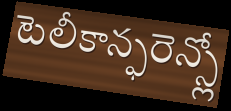
టెలీకాన్ఫరెన్స్లో